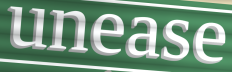
unease